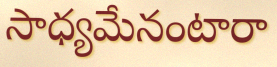
సాధ్యమేనంటారా